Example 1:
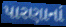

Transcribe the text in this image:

પારણાનાં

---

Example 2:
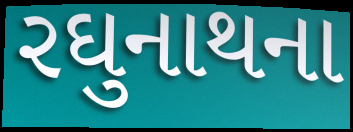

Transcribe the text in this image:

રઘુનાથના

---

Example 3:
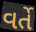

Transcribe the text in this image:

વર્તે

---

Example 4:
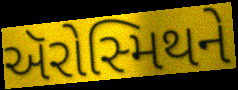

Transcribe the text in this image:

ઍરોસ્મિથને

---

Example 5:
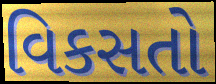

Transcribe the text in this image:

વિકસતો